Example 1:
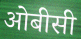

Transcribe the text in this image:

ओबीसी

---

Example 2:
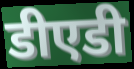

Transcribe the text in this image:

डीएडी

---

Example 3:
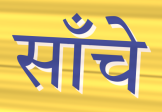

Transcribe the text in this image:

साँचे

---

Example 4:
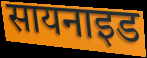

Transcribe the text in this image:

सायनाइड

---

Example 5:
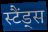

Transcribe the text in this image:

स्टैंड्स